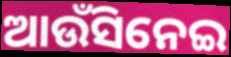
ଆଉଁସିନେଇ